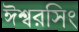
ঈশ্বরসিং